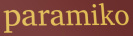
paramiko